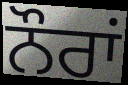
ਨੌਰਾਂ